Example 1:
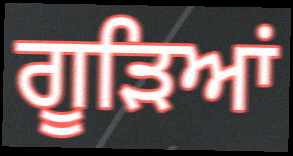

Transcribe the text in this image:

ਗੂੜਿਆਂ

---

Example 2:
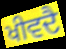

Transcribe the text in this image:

ਖੀਵਦੈ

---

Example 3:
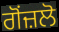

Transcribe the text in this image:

ਗੋਂਜ਼ਲੋ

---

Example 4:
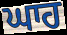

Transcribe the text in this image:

ਘਾਹ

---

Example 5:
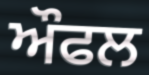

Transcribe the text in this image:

ਔਫਲ